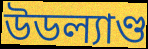
উডল্যাণ্ড